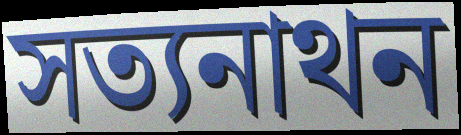
সত্যনাথন